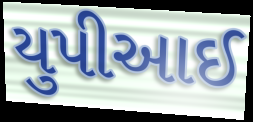
યુપીઆઈ